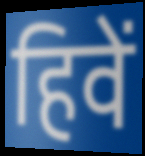
हिवें